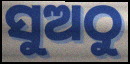
ସୁଅଠୁ